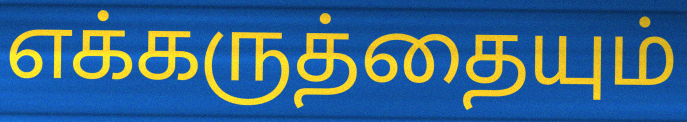
எக்கருத்தையும்